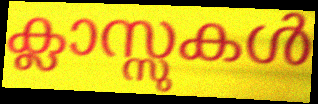
ക്ലാസ്സുകൾ